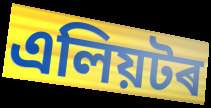
এলিয়টৰ